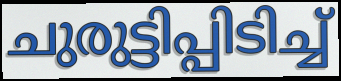
ചുരുട്ടിപ്പിടിച്ച്